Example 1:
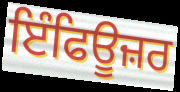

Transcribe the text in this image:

ਇੰਫਿਊਜ਼ਰ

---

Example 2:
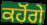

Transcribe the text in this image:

ਕਹੋਂਗੇ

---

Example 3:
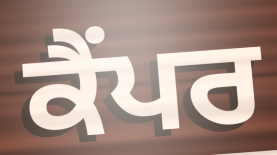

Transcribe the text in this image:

ਕੈਂਪਰ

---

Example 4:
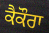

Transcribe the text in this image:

ਕੈਕੌਰਾ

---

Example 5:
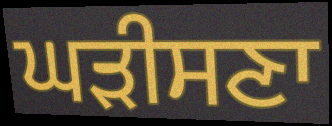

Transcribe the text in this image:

ਘੜੀਸਣਾ